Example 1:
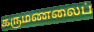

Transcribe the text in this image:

கருமணலைப்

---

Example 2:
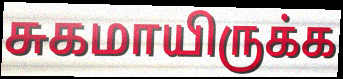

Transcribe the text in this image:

சுகமாயிருக்க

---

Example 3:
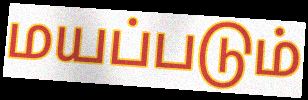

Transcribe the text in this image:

மயப்படும்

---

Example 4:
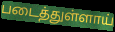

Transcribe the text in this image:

படைத்துள்ளாய்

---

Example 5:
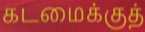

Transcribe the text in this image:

கடமைக்குத்